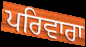
ਪਰਿਵਾਰਾ